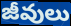
జీవులు